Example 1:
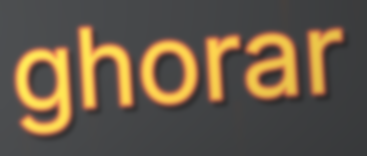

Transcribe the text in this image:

ghorar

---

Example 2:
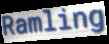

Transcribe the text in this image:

Ramling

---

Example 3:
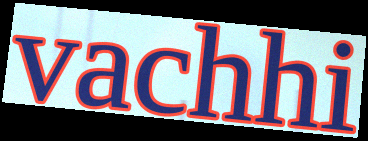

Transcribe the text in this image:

vachhi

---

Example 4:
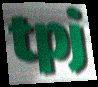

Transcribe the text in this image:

tpj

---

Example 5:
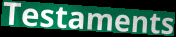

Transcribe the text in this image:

Testaments